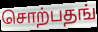
சொற்பதங்